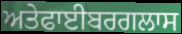
ਅਤੇਫਾਈਬਰਗਲਾਸ